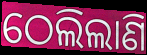
ଠେଲିଲାଣି